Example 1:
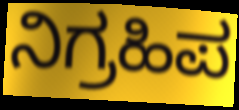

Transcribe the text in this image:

ನಿಗ್ರಹಿಪ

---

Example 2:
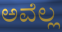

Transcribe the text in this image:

ಅವೆಲ್ಲ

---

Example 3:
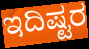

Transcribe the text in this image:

ಇದಿಷ್ಟರ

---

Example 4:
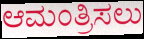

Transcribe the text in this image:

ಆಮಂತ್ರಿಸಲು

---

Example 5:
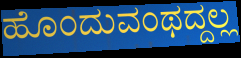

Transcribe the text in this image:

ಹೊಂದುವಂಥದ್ದಲ್ಲ